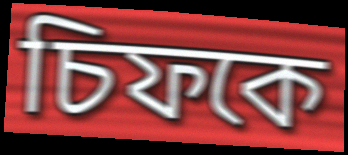
চিফকে